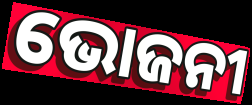
ଭୋଜନୀ